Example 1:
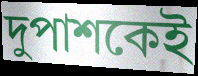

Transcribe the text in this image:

দুপাশকেই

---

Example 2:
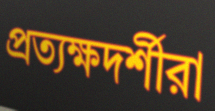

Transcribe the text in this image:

প্রত্যক্ষদর্শীরা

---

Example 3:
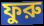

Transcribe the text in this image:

ফুরু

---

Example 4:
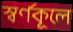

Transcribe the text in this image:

স্বর্ণকূলে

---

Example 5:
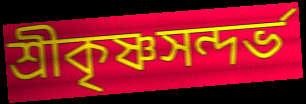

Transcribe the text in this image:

শ্রীকৃষ্ণসন্দর্ভ